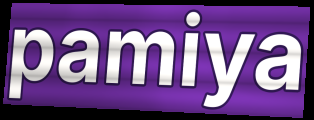
pamiya